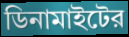
ডিনামাইটের